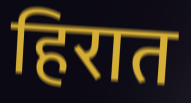
हिरात